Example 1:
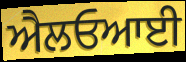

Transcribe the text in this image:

ਐਲਓਆਈ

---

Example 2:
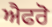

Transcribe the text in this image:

ਐਫਰੋ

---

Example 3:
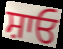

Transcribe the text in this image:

ਸ਼ਾਓ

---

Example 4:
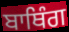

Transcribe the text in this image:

ਬਾਥਿੰਗ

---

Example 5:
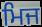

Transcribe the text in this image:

ਮਿਜ